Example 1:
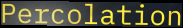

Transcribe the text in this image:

Percolation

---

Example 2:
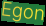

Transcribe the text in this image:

Egon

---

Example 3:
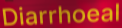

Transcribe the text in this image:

Diarrhoeal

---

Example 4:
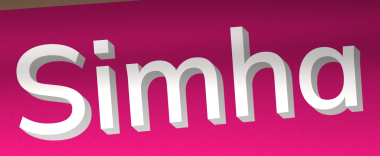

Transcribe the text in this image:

Simha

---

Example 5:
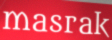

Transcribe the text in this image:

masrak